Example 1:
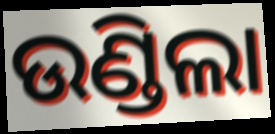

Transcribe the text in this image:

ଉଣ୍ଡିଲା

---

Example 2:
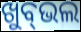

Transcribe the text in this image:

ଖୁବ୍‌ଭଲ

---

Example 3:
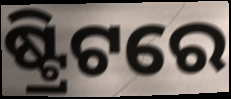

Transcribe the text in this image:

ଷ୍ଟ୍ରିଟରେ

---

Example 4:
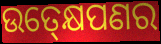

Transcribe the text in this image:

ଉତ୍କ୍ଷେପଣର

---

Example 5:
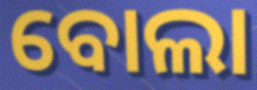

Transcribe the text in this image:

ବୋଲା